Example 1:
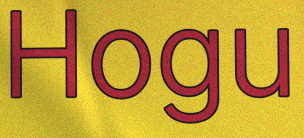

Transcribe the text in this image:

Hogu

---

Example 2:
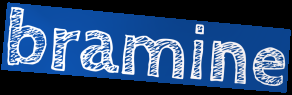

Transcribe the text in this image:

bramine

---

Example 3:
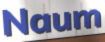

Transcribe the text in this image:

Naum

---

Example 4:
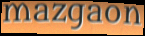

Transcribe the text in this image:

mazgaon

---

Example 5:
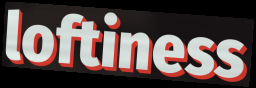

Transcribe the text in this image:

loftiness